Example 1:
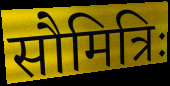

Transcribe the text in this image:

सौमित्रिः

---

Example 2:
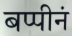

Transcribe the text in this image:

बप्पीनं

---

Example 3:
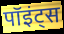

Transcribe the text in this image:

पॉइंट्स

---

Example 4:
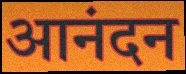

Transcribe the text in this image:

आनंदन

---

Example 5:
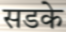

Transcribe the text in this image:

सडके